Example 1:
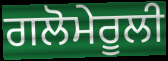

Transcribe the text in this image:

ਗਲੋਮੇਰੂਲੀ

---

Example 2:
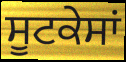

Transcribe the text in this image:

ਸੂਟਕੇਸਾਂ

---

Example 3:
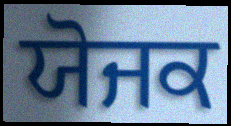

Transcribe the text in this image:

ਯੋਜਕ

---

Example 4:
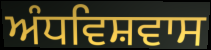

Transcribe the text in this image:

ਅੰਧਵਿਸ਼ਵਾਸ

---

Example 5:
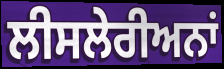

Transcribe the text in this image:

ਲੀਸਲੇਰੀਅਨਾਂ